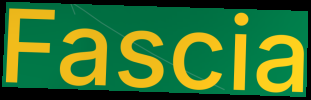
Fascia